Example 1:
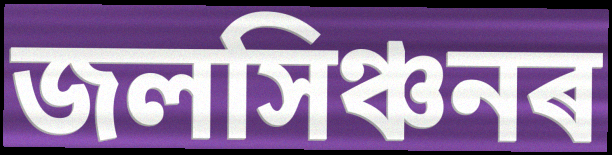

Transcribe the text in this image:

জলসিঞ্চনৰ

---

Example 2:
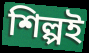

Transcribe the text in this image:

শিল্পই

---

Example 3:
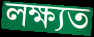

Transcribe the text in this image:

লক্ষ্য়ত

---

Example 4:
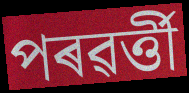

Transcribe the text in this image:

পৰৱৰ্ত্তী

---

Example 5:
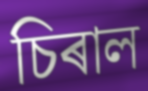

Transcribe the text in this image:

চিৰাল